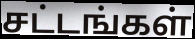
சட்டங்கள்